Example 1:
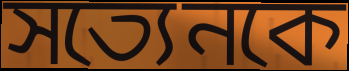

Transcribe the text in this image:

সত্যেনকে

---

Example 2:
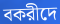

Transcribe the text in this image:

বকরীদে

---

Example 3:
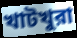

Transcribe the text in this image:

খাটখুরা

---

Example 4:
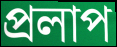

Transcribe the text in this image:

প্রলাপ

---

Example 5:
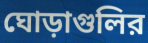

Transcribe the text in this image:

ঘোড়াগুলির